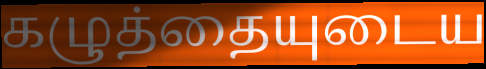
கழுத்தையுடைய